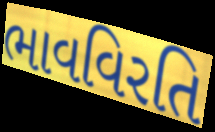
ભાવવિરતિ